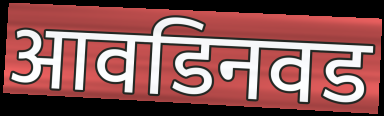
आवडिनवड